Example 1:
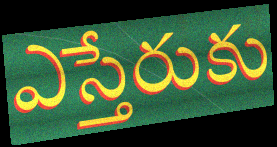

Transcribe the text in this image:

ఎస్తేరుకు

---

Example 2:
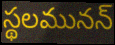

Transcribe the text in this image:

స్థలమునన్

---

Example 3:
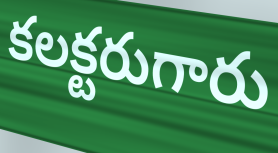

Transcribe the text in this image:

కలక్టరుగారు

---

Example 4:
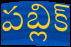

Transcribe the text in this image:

పబ్లిక్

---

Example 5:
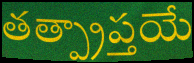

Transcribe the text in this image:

తత్ప్రాప్తయే